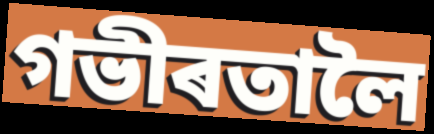
গভীৰতালৈ